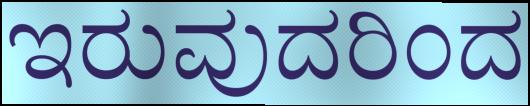
ಇರುವುದರಿಂದ